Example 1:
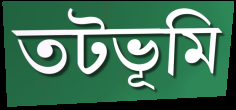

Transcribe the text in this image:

তটভূমি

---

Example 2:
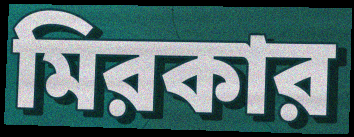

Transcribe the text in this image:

মিরকার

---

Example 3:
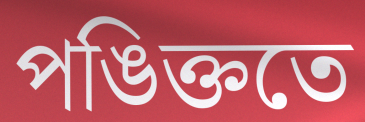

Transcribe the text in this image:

পঙিক্ততে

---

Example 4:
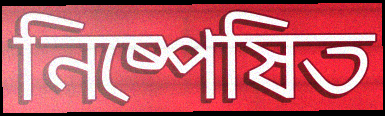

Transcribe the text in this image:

নিষ্পেষিত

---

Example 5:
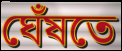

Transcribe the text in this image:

ঘেঁষতে